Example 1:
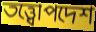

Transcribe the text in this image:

তত্ত্বোপদেশ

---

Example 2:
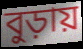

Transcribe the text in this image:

বুড়ায়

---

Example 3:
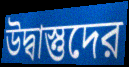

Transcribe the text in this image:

উদ্বাস্তুদের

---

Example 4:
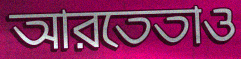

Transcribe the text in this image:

আরতেতাও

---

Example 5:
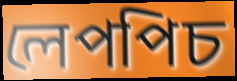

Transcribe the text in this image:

লেপপিচ